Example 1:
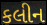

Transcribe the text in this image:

કલીન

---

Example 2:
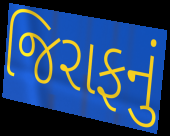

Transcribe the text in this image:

જિરાફનું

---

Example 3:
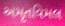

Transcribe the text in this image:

અમૃતવિમલ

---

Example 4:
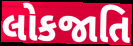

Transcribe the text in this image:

લોકજાતિ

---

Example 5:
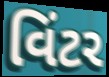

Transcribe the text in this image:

વિંટર